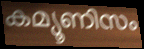
കമ്യൂണിസം